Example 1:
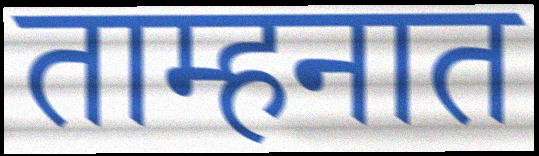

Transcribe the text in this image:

ताम्हनात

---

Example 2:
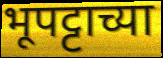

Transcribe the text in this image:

भूपट्टाच्या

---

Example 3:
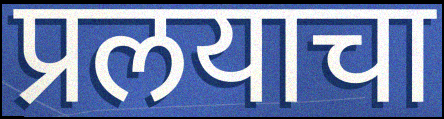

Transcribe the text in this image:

प्रलयाचा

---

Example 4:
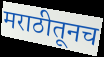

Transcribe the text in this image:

मराठीतूनच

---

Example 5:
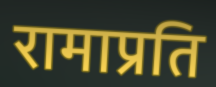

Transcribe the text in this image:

रामाप्रति